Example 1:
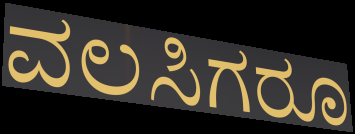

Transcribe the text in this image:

ವಲಸಿಗರೂ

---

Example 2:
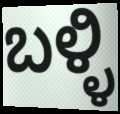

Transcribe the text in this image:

ಬಳ್ಳಿ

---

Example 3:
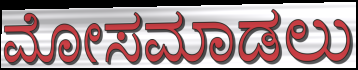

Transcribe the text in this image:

ಮೋಸಮಾಡಲು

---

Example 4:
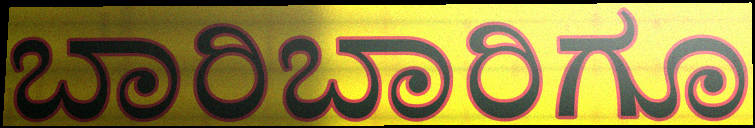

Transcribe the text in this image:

ಬಾರಿಬಾರಿಗೂ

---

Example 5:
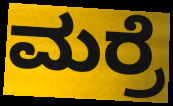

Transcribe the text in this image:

ಮರ್ರೆ